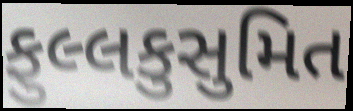
ફુલ્લકુસુમિત